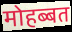
मोहब्बत